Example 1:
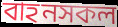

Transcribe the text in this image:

বাহনসকল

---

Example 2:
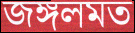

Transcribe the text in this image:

জঙ্গলমত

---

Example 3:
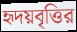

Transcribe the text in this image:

হৃদয়বৃত্তির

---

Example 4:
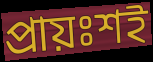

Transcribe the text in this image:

প্রায়ঃশই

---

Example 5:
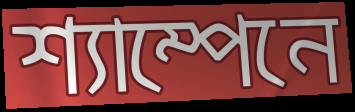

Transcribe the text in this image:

শ্যাম্পেনে